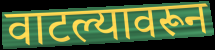
वाटल्यावरून